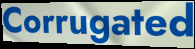
Corrugated